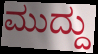
ಮುದ್ದು